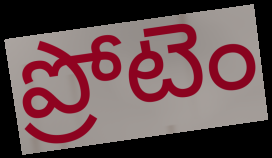
ప్రోటెం